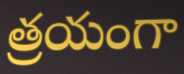
త్రయంగా